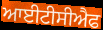
ਆਈਟੀਸੀਐਫ